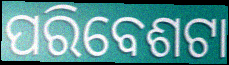
ପରିବେଶଟା